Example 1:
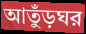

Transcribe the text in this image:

আতুঁড়ঘর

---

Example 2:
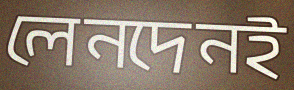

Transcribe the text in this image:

লেনদেনই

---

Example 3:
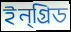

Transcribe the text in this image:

ইন্‌গ্রিড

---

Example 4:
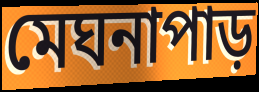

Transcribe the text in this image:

মেঘনাপাড়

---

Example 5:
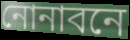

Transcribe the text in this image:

নোনাবনে